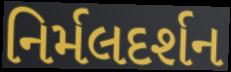
નિર્મલદર્શન